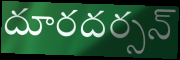
దూరదర్సన్